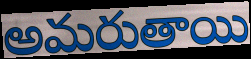
అమరుతాయి